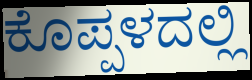
ಕೊಪ್ಪಳದಲ್ಲಿ